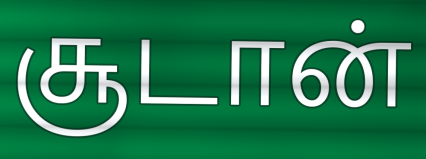
சூடான்